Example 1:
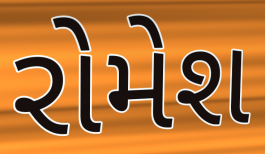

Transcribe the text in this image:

રોમેશ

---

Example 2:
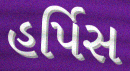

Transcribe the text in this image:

હર્પિસ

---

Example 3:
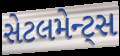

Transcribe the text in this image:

સેટલમેન્ટ્સ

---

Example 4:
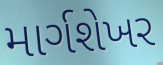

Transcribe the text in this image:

માર્ગશેખર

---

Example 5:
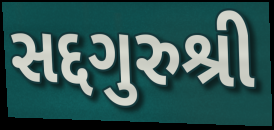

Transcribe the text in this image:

સદ્દગુરુશ્રી